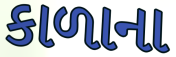
કાળાના